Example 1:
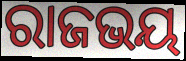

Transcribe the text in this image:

ରାଜଭୟ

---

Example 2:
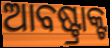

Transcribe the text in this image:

ଆବଷ୍ଟ୍ରାକ୍ଟ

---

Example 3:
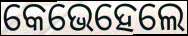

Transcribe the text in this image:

କେଭେହେଲେ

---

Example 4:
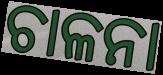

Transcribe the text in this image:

ଚାଳନା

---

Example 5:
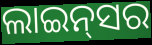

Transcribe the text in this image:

ଲାଇନ୍‌ସର